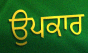
ਉਪਕਾਰ